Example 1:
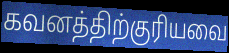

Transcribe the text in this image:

கவனத்திற்குரியவை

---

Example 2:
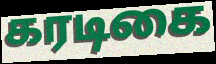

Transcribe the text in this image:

கரடிகை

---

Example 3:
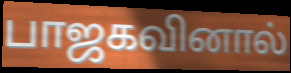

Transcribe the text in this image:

பாஜகவினால்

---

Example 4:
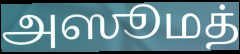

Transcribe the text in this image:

அஸூமத்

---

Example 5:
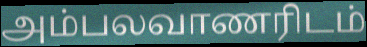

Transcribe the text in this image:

அம்பலவாணரிடம்